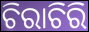
ଚିରାଚିରି